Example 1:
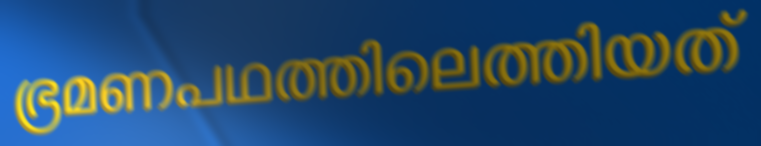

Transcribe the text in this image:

ഭ്രമണപഥത്തിലെത്തിയത്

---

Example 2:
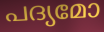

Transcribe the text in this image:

പദ്യമോ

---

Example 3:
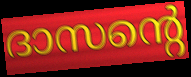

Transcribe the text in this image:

ദാസന്റെ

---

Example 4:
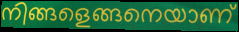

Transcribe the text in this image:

നിങ്ങളെങ്ങനെയാണ്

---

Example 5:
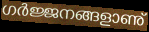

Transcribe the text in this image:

ഗർജ്ജനങ്ങളാണു്